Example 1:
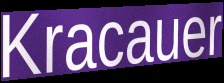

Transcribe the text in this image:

Kracauer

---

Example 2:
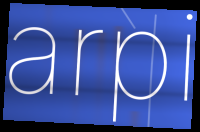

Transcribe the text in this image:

arpi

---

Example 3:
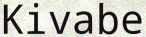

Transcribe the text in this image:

Kivabe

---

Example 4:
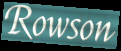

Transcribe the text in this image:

Rowson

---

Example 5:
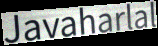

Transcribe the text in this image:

Javaharlal